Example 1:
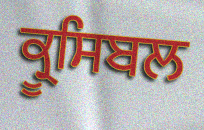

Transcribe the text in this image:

ਕ੍ਰੂਸਿਬਲ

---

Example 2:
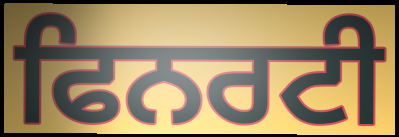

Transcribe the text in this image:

ਫਿਨਰਟੀ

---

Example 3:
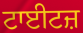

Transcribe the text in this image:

ਟਾਈਟਜ਼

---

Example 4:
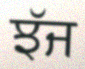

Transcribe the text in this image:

ਝੱਜ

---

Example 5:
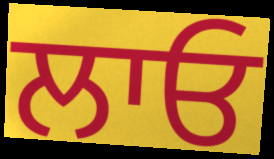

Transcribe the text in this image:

ਲਾਓ